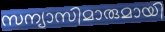
സന്യാസിമാരുമായി